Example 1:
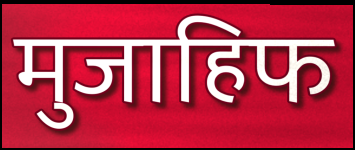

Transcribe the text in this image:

मुजाहिफ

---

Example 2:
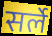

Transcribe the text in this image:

सर्ले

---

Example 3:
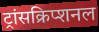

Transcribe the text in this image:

ट्रांसक्रिप्शनल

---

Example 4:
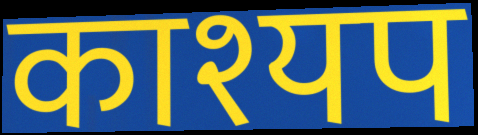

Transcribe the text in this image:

काश्यप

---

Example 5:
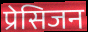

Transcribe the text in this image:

प्रेसिजन